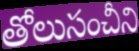
తోలుసంచీని